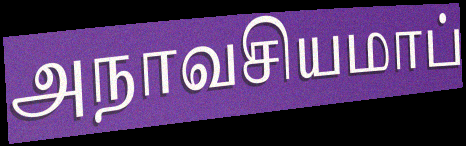
அநாவசியமாப்